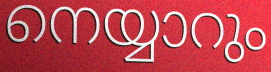
നെയ്യാറും